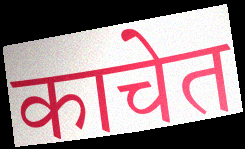
काचेत